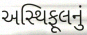
અસ્થિફૂલનું